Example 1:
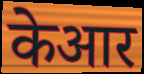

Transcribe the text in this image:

केआर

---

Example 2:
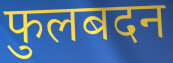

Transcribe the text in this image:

फुलबदन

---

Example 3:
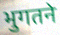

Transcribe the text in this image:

भुगतने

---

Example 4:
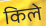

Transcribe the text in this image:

किले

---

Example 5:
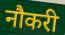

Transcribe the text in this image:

नौकरी